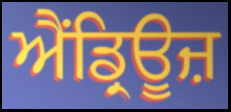
ਐਂਡ੍ਰਿਊਜ਼